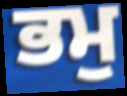
ਭਮੁ